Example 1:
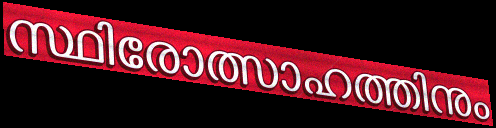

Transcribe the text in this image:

സ്ഥിരോത്സാഹത്തിനും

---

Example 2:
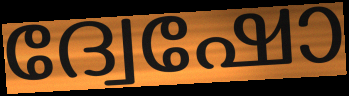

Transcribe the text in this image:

ദ്വേഷോ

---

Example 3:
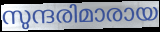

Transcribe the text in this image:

സുന്ദരിമാരായ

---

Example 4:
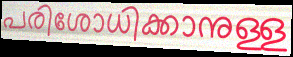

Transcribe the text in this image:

പരിശോധിക്കാനുള്ള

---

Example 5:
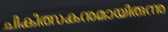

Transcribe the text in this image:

ചികിത്സകനുമായിരുന്നു